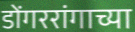
डोंगररांगाच्या